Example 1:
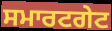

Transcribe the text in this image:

ਸਮਾਰਟਗੇਟ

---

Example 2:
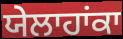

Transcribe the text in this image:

ਯੇਲਾਹਾਂਕਾ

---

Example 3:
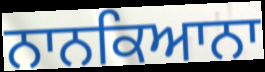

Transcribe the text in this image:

ਨਾਨਕਿਆਨਾ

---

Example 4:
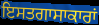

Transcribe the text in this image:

ਇਸਤਗਾਸਾਕਾਰਾਂ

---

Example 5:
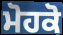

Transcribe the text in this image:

ਮੋਹਕੋ